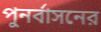
পুনর্বাসনের